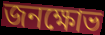
জনক্ষোভ